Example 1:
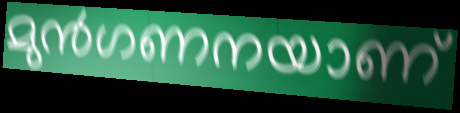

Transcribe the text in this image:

മുൻഗണനയാണ്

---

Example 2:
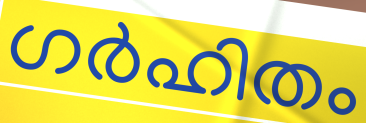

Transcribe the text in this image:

ഗർഹിതം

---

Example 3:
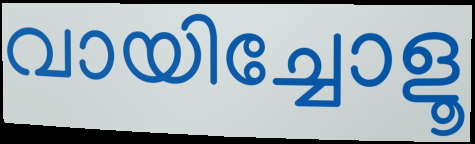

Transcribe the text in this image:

വായിച്ചോളൂ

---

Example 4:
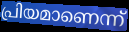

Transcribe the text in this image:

പ്രിയമാണെന്ന്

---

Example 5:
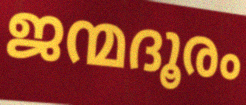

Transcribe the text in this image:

ജന്മദൂരം